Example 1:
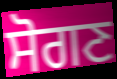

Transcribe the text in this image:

ਸੋਗਣ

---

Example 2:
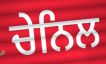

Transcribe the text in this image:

ਚੇਨਿਲ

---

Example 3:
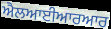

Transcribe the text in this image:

ਐਲਆਈਆਰਆਰ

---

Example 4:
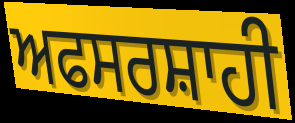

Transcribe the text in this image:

ਅਫਸਰਸ਼ਾਹੀ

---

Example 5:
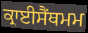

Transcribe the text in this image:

ਕ੍ਰਾਈਸੈਂਥਮਮ